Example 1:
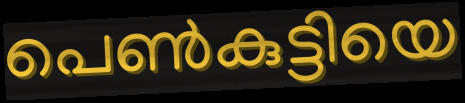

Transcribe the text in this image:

പെൺകുട്ടിയെ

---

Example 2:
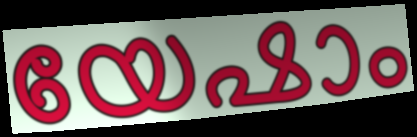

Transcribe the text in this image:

യേഷാം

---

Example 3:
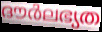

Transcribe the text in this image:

ദൗർലഭ്യത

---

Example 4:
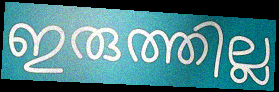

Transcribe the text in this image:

ഇരുത്തില്ല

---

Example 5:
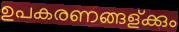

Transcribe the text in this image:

ഉപകരണങ്ങള്ക്കും